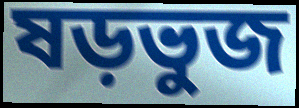
ষড়ভুজ